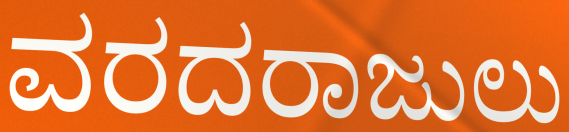
ವರದರಾಜುಲು